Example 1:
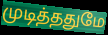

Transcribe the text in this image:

முடித்ததுமே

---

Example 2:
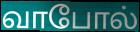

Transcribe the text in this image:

வாபோல்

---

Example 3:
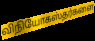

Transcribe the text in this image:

விநியோகஸ்தர்களை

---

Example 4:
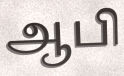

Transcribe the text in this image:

ஆபி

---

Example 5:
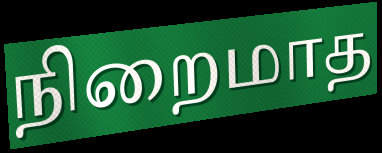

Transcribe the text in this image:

நிறைமாத